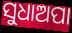
ସୁଧାଅପା